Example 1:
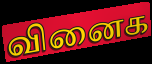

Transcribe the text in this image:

வினைக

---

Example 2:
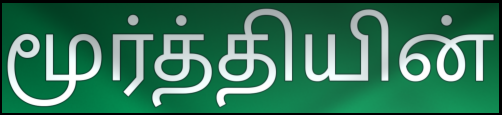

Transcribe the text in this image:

மூர்த்தியின்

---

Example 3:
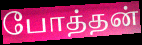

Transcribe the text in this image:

போத்தன்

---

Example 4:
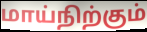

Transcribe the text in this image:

மாய்நிற்கும்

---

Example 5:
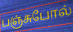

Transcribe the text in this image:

பஞ்சுபோல்